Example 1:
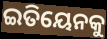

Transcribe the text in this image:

ଇତିୟେନକୁ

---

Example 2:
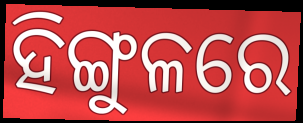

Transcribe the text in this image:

ହିଙ୍ଗୁଳରେ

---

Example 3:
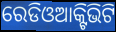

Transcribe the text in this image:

ରେଡିଓଆକ୍ଟିଭିଟି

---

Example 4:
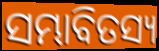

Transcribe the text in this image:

ସମ୍ଭାବିତସ୍ୟ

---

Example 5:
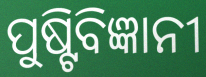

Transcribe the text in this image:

ପୁଷ୍ଟିବିଜ୍ଞାନୀ